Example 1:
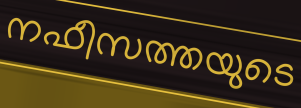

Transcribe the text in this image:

നഫീസത്തയുടെ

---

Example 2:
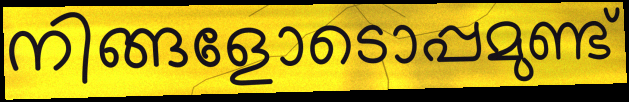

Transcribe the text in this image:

നിങ്ങളോടൊപ്പമുണ്ട്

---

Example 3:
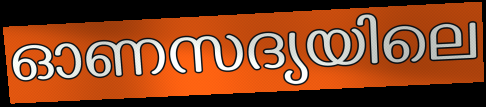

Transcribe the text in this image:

ഓണസദ്യയിലെ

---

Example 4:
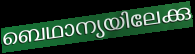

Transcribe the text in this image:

ബെഥാന്യയിലേക്കു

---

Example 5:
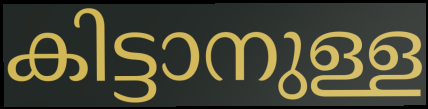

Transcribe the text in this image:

കിട്ടാനുള്ള